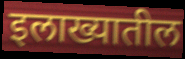
इलाख्यातील